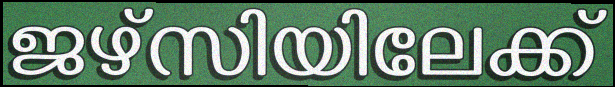
ജഴ്സിയിലേക്ക്